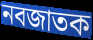
নবজাতক